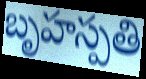
బృహస్పతి